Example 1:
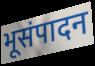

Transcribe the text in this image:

भूसंपादन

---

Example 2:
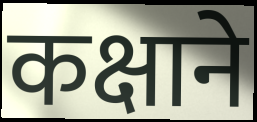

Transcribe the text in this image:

कक्षाने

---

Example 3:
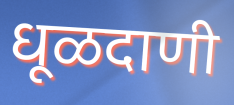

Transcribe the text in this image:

धूळदाणी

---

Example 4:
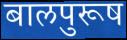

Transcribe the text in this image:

बालपुरूष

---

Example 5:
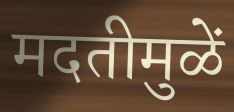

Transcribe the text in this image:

मदतीमुळें